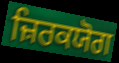
ਜ਼ਿਰਕਯੋਗ